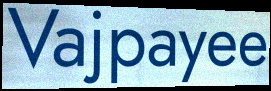
Vajpayee